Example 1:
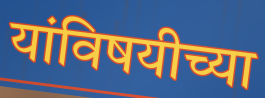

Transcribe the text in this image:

यांविषयीच्या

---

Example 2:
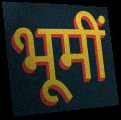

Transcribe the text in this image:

भूमीं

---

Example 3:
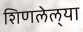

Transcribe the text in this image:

शिणलेल्या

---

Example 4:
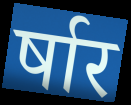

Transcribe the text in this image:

र्षार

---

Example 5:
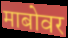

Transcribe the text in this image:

माबोवर